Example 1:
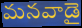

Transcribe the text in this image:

మనవాడై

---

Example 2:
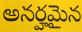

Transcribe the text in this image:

అనర్హమైన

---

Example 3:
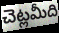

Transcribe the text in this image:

చెట్లమీది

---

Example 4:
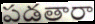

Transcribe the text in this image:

పడతారా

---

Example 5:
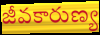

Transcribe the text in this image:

జీవకారుణ్య